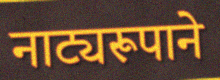
नाट्यरूपाने